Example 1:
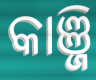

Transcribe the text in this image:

କାଞ୍ଜି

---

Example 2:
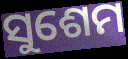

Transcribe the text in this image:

ସୁଶେମ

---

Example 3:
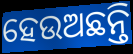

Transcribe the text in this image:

ହେଉଅଛନ୍ତି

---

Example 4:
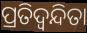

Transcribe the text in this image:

ପ୍ରତିଦ୍ୱନ୍ଦିତା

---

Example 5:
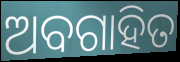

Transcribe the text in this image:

ଅବଗାହିତ